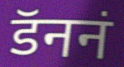
डॅननं